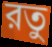
রতু